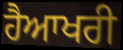
ਹੈਆਖਰੀ